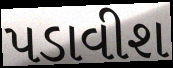
પડાવીશ